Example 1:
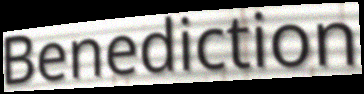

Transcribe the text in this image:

Benediction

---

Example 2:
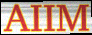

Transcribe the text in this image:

AIIM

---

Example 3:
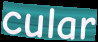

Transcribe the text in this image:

cular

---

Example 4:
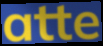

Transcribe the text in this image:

atte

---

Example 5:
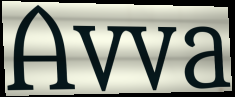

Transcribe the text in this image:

Avva